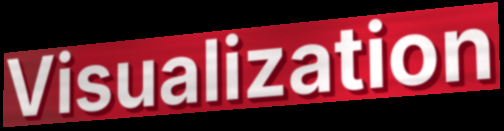
Visualization